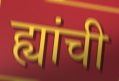
ह्यांची